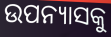
ଉପନ୍ୟାସକୁ